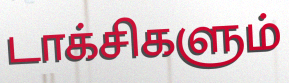
டாக்சிகளும்